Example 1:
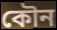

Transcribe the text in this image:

কৌন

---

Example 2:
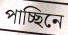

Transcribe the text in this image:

পাচ্ছিনে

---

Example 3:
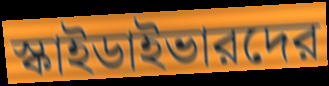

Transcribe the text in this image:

স্কাইডাইভারদের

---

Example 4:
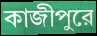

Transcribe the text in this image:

কাজীপুরে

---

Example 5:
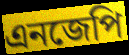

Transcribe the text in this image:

এনজেপি